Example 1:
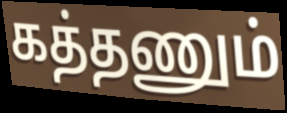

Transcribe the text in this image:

கத்தணும்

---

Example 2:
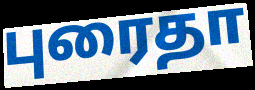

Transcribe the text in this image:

புரைதா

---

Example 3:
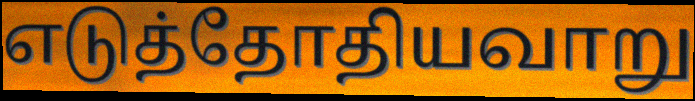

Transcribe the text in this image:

எடுத்தோதியவாறு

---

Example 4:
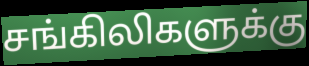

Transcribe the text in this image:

சங்கிலிகளுக்கு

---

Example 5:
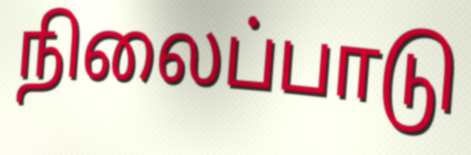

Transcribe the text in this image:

நிலைப்பாடு